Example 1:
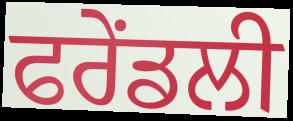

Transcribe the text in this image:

ਫਰੇਂਡਲੀ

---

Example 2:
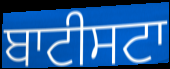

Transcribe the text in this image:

ਬਾਟੀਸਟਾ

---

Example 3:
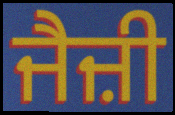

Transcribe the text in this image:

ਜੈਜ਼ੀ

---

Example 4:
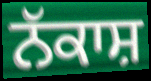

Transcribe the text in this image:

ਨੱਕਾਸ਼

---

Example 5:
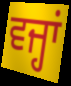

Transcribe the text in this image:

ਵਜ੍ਹਾਂ